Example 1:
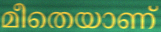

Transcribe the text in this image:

മീതെയാണ്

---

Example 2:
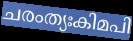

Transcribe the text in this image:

ചരംത്യഃകിമപി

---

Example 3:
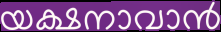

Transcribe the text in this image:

യക്ഷനാവാൻ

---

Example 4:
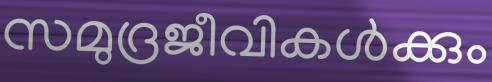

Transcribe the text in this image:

സമുദ്രജീവികൾക്കും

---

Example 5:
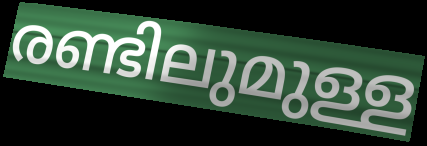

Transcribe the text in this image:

രണ്ടിലുമുള്ള